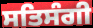
ਸਤਿਸੰਗੀ